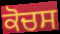
ਕੋਚਸ